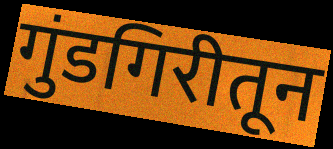
गुंडगिरीतून